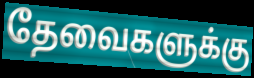
தேவைகளுக்கு